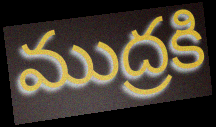
ముద్రకి